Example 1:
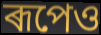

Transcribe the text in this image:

ৰূপেও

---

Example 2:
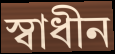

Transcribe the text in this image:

স্বাধীন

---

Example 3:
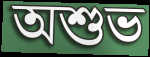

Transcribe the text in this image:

অশুভ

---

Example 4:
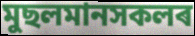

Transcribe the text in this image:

মুছলমানসকলৰ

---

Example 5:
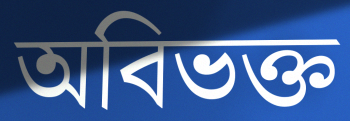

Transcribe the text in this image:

অবিভক্ত